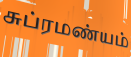
சுப்ரமண்யம்